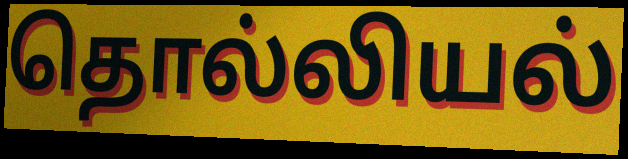
தொல்லியல்